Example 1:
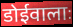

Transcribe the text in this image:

डोईवालाः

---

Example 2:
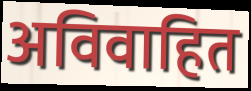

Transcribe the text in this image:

अविवाहित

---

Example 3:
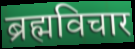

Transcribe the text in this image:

ब्रह्मविचार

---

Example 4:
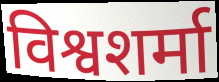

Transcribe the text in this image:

विश्वशर्मा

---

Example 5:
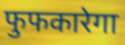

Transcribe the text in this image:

फुफकारेगा